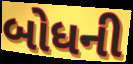
બોધની